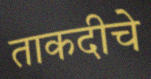
ताकदीचे